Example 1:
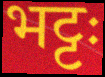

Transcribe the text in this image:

भट्टः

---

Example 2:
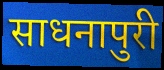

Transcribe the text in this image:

साधनापुरी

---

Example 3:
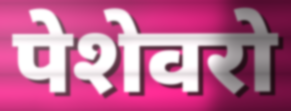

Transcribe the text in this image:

पेशेवरो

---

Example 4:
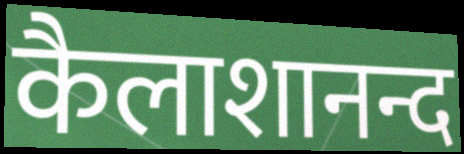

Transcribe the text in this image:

कैलाशानन्द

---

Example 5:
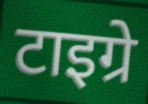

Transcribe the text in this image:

टाइग्रे